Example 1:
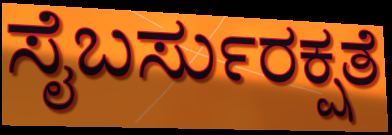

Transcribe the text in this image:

ಸೈಬರ್ಸುರಕ್ಷತೆ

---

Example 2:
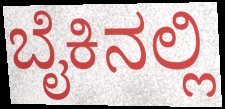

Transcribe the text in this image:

ಬೈಕಿನಲ್ಲಿ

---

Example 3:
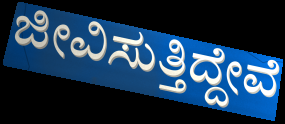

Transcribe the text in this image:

ಜೀವಿಸುತ್ತಿದ್ದೇವೆ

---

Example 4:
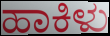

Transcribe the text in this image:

ಹಾಕಿಳು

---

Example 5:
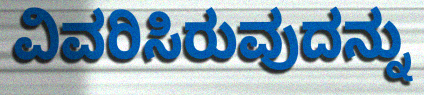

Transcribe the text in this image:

ವಿವರಿಸಿರುವುದನ್ನು